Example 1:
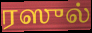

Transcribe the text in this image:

ரஸுல்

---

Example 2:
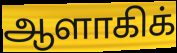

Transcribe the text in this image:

ஆளாகிக்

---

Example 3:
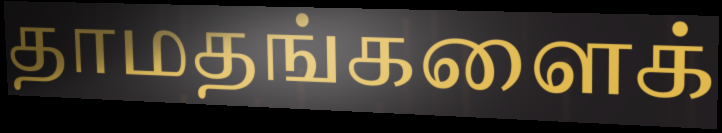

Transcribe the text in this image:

தாமதங்களைக்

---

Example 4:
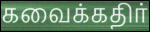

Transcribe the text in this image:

கவைக்கதிர்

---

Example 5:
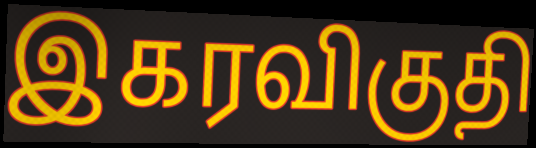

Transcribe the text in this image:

இகரவிகுதி